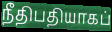
நீதிபதியாகப்